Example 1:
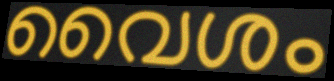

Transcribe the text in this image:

വൈശം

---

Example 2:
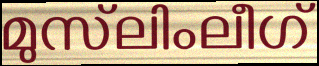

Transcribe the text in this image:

മുസ്‌ലിംലീഗ്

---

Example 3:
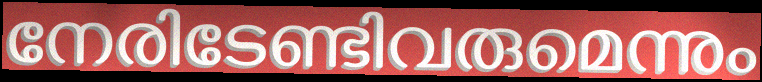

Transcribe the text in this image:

നേരിടേണ്ടിവരുമെന്നും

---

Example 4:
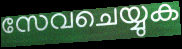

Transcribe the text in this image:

സേവചെയ്യുക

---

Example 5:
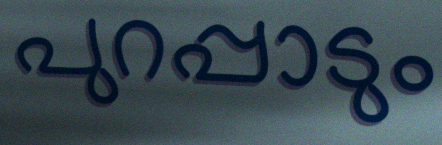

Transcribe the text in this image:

പുറപ്പാടും